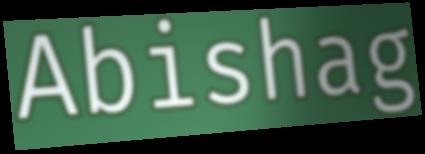
Abishag